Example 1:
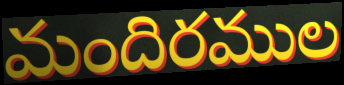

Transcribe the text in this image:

మందిరముల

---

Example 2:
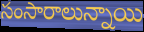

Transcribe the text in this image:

సంసారాలున్నాయి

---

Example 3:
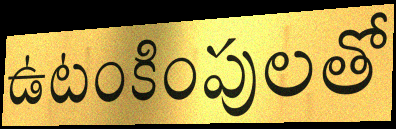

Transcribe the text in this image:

ఉటంకింపులతో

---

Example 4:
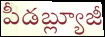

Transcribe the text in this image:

పీడబ్ల్యూజీ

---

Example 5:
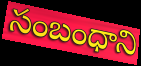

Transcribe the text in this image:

సంబంధాని